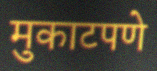
मुकाटपणे